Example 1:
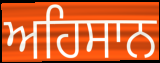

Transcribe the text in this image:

ਅਹਿਸਾਨ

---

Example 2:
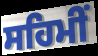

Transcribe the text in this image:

ਸਹਿਮੀਂ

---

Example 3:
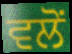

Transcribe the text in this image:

ਵਲੋੰ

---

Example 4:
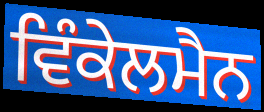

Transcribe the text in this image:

ਵਿੰਕੇਲਮੈਨ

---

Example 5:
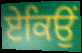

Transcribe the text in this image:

ਏਕਿਉਂ